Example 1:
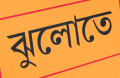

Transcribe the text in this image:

ঝুলোতে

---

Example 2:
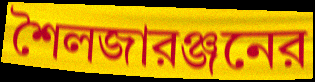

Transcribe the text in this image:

শৈলজারঞ্জনের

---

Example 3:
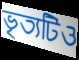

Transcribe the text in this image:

ভৃত্যটিও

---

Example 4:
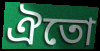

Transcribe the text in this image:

ঐতো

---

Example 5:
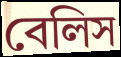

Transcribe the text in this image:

বেলিস